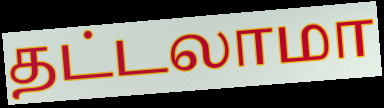
தட்டலாமா